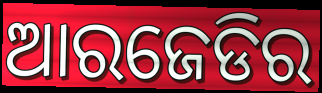
ଆରଜେଡିର